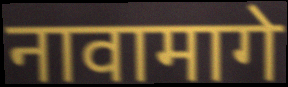
नावामागे